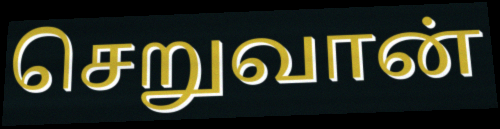
செறுவான்